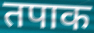
तपाक